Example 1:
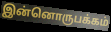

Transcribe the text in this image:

இன்னொருபக்கம்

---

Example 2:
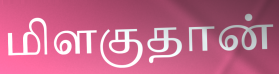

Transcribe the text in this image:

மிளகுதான்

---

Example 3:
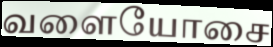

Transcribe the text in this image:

வளையோசை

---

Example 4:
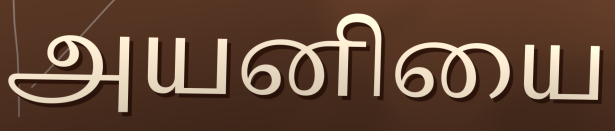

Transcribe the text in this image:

அயனியை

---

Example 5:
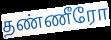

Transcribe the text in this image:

தண்ணீரோ